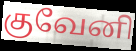
குவேனி